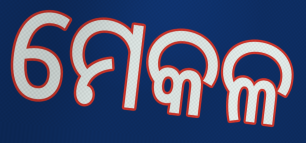
ମେକଳ